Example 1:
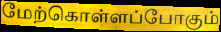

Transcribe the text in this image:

மேற்கொள்ளப்போகும்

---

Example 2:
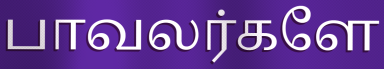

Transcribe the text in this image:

பாவலர்களே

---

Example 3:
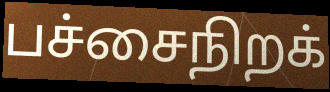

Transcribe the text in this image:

பச்சைநிறக்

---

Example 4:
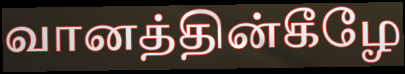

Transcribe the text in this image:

வானத்தின்கீழே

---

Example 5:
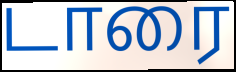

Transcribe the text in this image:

டாரை